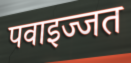
पवाइज्जत